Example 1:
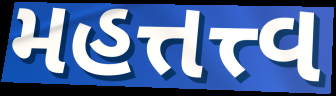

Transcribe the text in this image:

મહત્તત્ત્વ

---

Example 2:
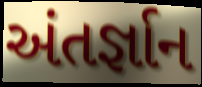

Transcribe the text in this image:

અંતર્જ્ઞાન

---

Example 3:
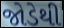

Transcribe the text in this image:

જોડેથી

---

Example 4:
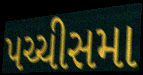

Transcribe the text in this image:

પચ્ચીસમા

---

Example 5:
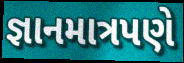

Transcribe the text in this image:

જ્ઞાનમાત્રપણે